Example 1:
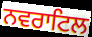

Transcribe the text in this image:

ਨਵਰਾਟਿਲ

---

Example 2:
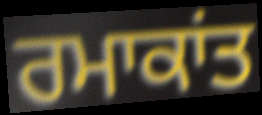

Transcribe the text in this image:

ਰਮਾਕਾਂਤ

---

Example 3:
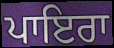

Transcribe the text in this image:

ਪਾਇਰਾ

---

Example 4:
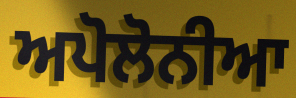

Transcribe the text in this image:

ਅਪੋਲੋਨੀਆ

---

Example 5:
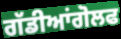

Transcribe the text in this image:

ਗੱਡੀਆਂਗੋਲਫ